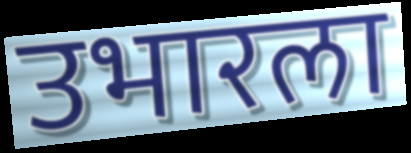
उभारला